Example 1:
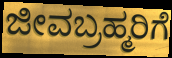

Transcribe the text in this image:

ಜೀವಬ್ರಹ್ಮರಿಗೆ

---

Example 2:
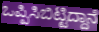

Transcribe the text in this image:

ಒಪ್ಪಿಸಿಬಿಟ್ಟಿದ್ದಾನೆ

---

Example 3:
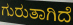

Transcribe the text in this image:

ಗುರುತಾಗಿದೆ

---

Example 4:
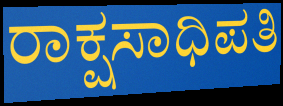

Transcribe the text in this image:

ರಾಕ್ಷಸಾಧಿಪತಿ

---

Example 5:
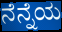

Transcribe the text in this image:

ನೆನ್ನೆಯ